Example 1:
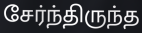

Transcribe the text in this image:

சேர்ந்திருந்த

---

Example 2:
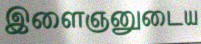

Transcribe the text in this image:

இளைஞனுடைய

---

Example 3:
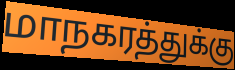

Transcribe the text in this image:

மாநகரத்துக்கு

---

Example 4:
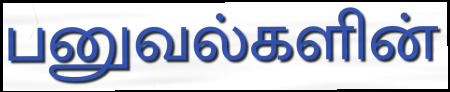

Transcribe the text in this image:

பனுவல்களின்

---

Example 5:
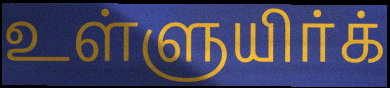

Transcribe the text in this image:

உள்ளுயிர்க்